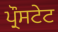
ਪ੍ਰੌਸਟੇਟ